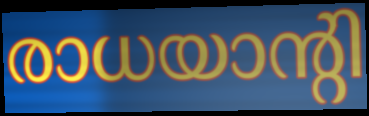
രാധയാന്റി